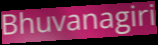
Bhuvanagiri